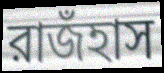
রাজঁহাস